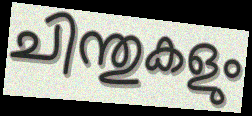
ചിന്തുകളും